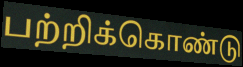
பற்றிக்கொண்டு